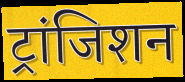
ट्रांजिशन